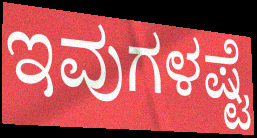
ಇವುಗಳಷ್ಟೆ